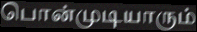
பொன்முடியாரும்